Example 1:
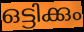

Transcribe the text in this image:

ഒട്ടിക്കും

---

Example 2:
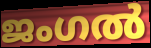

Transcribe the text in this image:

ജംഗൽ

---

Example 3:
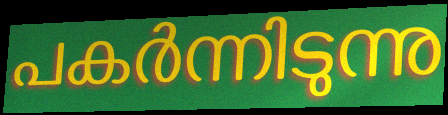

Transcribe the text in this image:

പകർന്നിടുന്നു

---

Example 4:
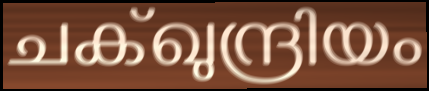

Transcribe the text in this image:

ചക്ഖുന്ദ്രിയം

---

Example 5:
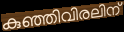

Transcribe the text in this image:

കുഞ്ഞിവിരലിന്